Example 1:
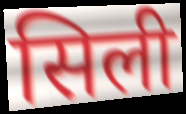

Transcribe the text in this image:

सिली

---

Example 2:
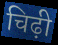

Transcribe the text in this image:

चिढ़ी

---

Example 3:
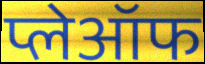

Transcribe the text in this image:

प्लेऑफ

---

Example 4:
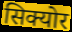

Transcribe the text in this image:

सिक्योर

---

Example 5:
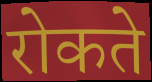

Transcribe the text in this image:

रोकते